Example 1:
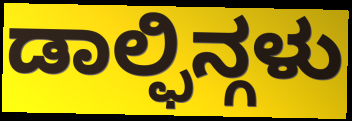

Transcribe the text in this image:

ಡಾಲ್ಫಿನ್ಗಳು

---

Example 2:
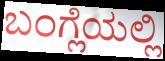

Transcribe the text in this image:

ಬಂಗ್ಲೆಯಲ್ಲಿ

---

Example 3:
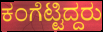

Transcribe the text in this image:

ಕಂಗೆಟ್ಟಿದ್ದರು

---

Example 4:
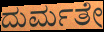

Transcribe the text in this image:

ದುರ್ಮತೇ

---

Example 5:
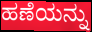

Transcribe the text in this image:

ಹಣೆಯನ್ನು